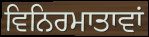
ਵਿਨਿਰਮਾਤਾਵਾਂ